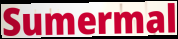
Sumermal